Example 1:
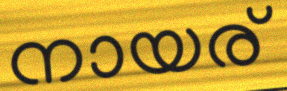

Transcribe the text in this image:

നായര്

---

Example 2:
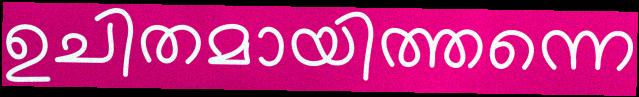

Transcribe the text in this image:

ഉചിതമായിത്തന്നെ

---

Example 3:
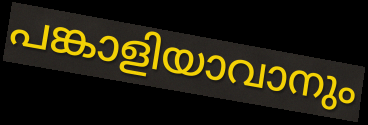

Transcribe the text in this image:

പങ്കാളിയാവാനും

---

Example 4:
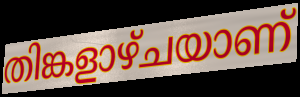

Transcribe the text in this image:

തിങ്കളാഴ്ചയാണ്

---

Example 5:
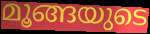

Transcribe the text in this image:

മൂങ്ങയുടെ